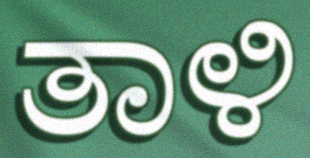
ತಾಳಿ